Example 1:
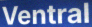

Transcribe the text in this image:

Ventral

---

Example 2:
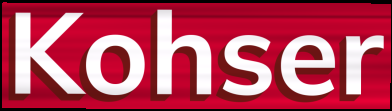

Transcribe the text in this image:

Kohser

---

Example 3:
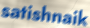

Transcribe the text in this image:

satishnaik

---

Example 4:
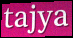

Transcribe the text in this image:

tajya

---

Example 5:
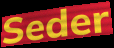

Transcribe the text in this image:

Seder